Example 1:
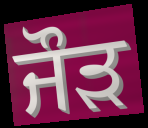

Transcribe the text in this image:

ਜੌੜ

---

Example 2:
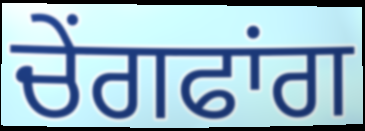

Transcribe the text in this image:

ਚੇਂਗਫਾਂਗ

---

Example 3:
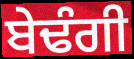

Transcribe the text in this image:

ਬੇਢੰਗੀ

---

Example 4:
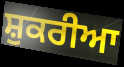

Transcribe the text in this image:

ਸ਼ੁਕਰੀਆ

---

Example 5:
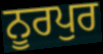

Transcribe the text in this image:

ਨੂਰਪੁਰ